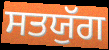
ਸਤਯੁੱਗ